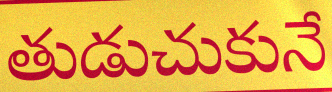
తుడుచుకునే